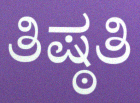
ತಿಷ್ಠತಿ